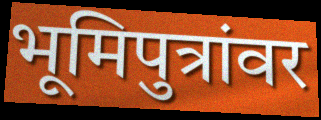
भूमिपुत्रांवर